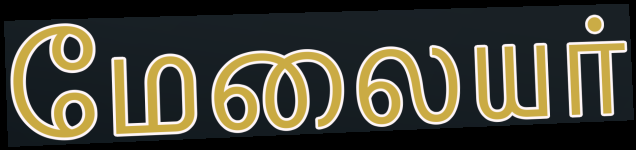
மேலையர்